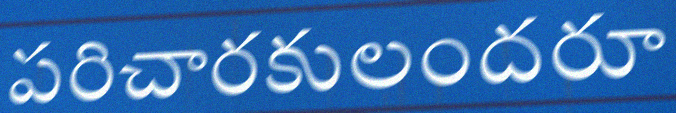
పరిచారకులందరూ